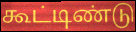
கூட்டிண்டு